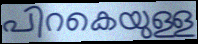
പിറകെയുള്ള